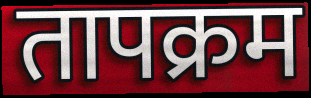
तापक्रम